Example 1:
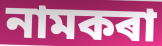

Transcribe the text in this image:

নামকৰা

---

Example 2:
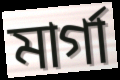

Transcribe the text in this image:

মাৰ্গা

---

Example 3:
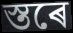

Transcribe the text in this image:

স্তৰে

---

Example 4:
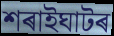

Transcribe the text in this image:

শৰাইঘাটৰ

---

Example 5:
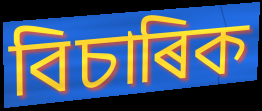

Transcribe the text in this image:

বিচাৰিক